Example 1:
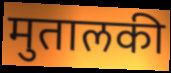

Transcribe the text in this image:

मुतालकी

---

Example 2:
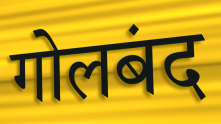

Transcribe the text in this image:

गोलबंद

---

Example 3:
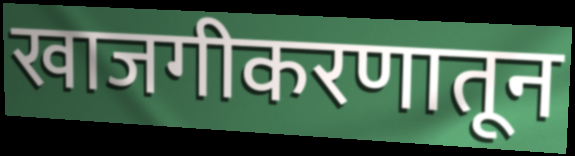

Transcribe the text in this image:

खाजगीकरणातून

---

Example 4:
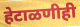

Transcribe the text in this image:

हेटाळणीही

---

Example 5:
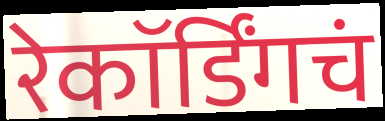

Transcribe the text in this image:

रेकॉर्डिंगचं